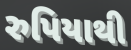
રુપિયાથી